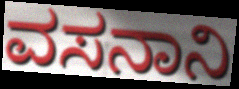
ವಸನಾನಿ